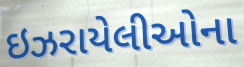
ઇઝરાયેલીઓના